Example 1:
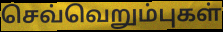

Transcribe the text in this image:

செவ்வெறும்புகள்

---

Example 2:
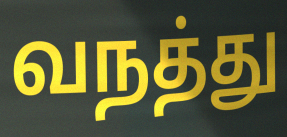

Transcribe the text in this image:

வநத்து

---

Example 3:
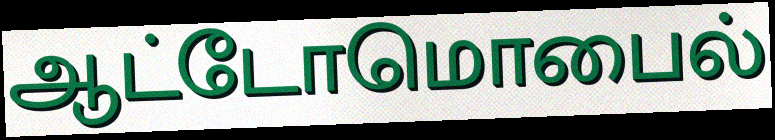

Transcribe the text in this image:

ஆட்டோமொபைல்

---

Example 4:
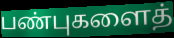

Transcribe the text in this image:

பண்புகளைத்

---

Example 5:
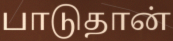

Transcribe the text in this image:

பாடுதான்